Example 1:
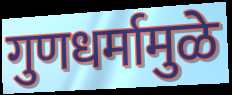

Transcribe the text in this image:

गुणधर्मामुळे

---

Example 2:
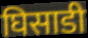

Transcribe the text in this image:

घिसाडी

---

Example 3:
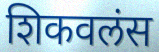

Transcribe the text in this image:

शिकवलंस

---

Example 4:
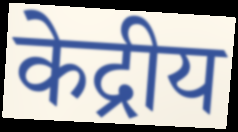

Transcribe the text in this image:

केद्रीय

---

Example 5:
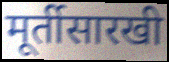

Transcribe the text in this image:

मूर्तीसारखी